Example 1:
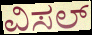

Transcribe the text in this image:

ವಿಸಲ್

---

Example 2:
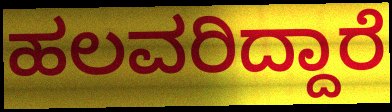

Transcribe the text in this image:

ಹಲವರಿದ್ದಾರೆ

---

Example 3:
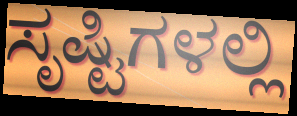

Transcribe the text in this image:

ಸೃಷ್ಟಿಗಳಲ್ಲಿ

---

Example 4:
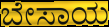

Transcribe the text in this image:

ಬೇಸಾಯ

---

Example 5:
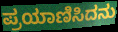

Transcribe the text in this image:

ಪ್ರಯಾಣಿಸಿದನು